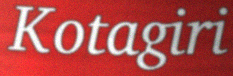
Kotagiri